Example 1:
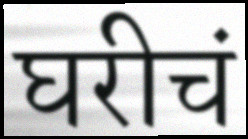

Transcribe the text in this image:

घरीचं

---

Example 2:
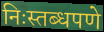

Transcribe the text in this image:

निःस्तब्धपणे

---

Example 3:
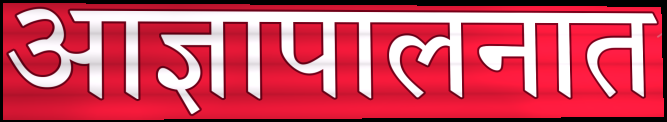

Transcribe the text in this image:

आज्ञापालनात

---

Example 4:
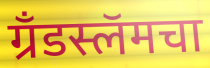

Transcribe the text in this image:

ग्रँडस्लॅमचा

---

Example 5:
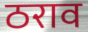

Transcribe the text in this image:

ठराव